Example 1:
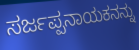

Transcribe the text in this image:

ಸರ್ಜಪ್ಪನಾಯಕನನ್ನು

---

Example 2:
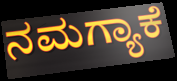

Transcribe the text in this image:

ನಮಗ್ಯಾಕೆ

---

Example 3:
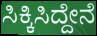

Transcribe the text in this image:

ಸಿಕ್ಕಿಸಿದ್ದೇನೆ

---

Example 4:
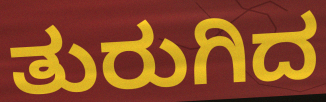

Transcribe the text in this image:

ತುರುಗಿದ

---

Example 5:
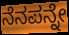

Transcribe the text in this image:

ನೆನಪನ್ನೇ